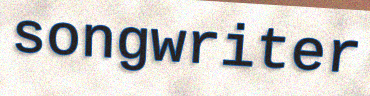
songwriter